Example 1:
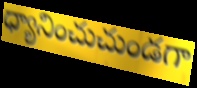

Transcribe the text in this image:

ధ్యానించుచుండగా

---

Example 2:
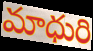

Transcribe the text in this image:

మాధురి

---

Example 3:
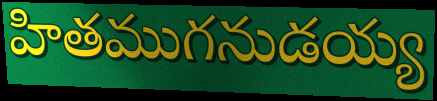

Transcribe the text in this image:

హితముగనుడయ్య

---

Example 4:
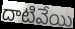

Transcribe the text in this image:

దాటివేయి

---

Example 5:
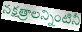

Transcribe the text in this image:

నక్షత్రాలన్నింటినీ